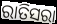
ରାତିସରା